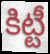
కిట్టీ